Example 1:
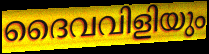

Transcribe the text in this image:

ദൈവവിളിയും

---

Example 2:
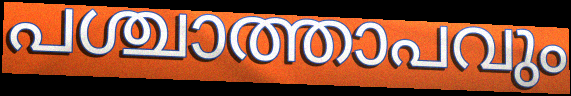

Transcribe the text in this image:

പശ്ചാത്താപവും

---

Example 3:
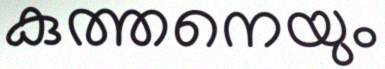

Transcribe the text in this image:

കുത്തനെയും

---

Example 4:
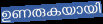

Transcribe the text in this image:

ഉണരുകയായി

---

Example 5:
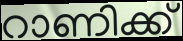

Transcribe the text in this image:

റാണിക്ക്